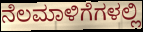
ನೆಲಮಾಳಿಗೆಗಳಲ್ಲಿ